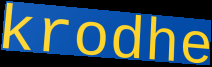
krodhe